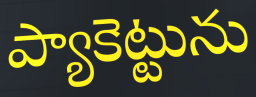
ప్యాకెట్టును